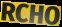
RCHO